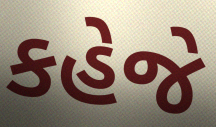
કહેજે